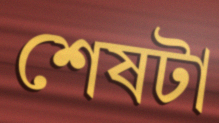
শেষটা